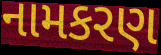
નામકરણ